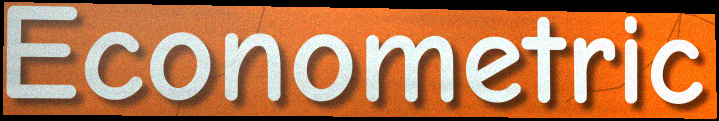
Econometric